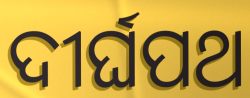
ଦୀର୍ଘପଥ